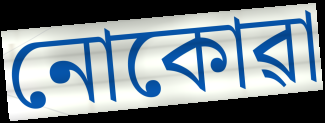
নোকোৱা